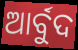
ଆର୍ବୁଦ